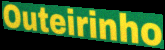
Outeirinho